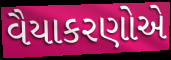
વૈયાકરણોએ